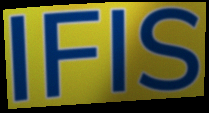
IFIS